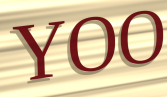
YOO